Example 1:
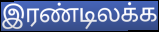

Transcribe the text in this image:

இரண்டிலக்க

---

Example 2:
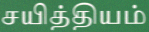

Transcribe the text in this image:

சயித்தியம்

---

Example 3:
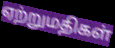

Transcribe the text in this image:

ஏற்றுமதிகள்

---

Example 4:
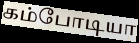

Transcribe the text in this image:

கம்போடியா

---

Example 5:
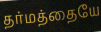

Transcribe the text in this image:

தர்மத்தையே